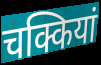
चक्कियां